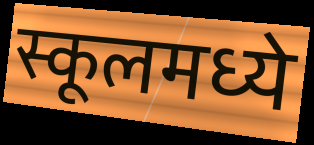
स्कूलमध्ये